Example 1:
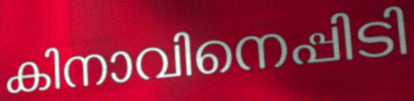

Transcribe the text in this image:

കിനാവിനെപ്പിടി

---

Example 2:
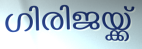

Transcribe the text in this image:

ഗിരിജയ്ക്ക്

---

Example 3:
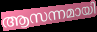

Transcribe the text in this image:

ആസന്നമായി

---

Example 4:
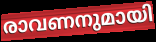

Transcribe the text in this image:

രാവണനുമായി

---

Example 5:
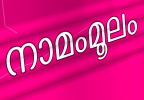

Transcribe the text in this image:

നാമംമൂലം